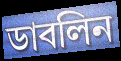
ডাবলিন